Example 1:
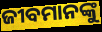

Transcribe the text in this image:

ଜୀବମାନଙ୍କୁ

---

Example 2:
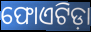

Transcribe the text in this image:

ଫୋଏଟିଡ଼ା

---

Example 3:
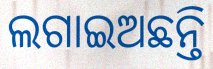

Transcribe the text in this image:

ଲଗାଇଅଛନ୍ତି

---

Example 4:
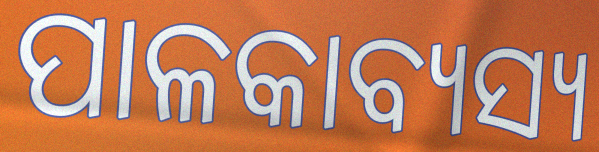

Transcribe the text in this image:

ପାଳକାବ୍ୟସ୍ୟ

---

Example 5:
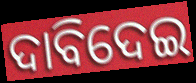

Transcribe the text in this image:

ଦାବିଦେଇ